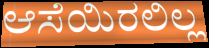
ಆಸೆಯಿರಲಿಲ್ಲ